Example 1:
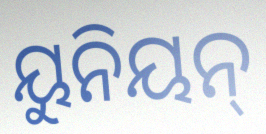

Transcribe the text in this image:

ୟୁନିୟନ୍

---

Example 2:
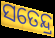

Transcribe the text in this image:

ସତେନ୍ଦ୍ର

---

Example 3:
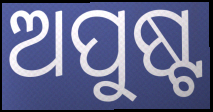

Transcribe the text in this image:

ଅପୁଷ୍ଟ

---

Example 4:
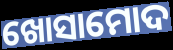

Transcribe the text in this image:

ଖୋସାମୋଦ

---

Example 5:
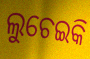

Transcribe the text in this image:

ଲୁଚେଇକି